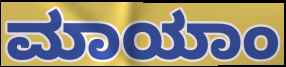
ಮಾಯಾಂ